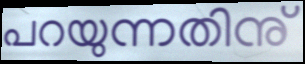
പറയുന്നതിനു്